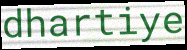
dhartiye